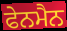
ਫੇਨਮੈਨ